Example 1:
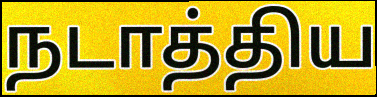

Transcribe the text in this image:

நடாத்திய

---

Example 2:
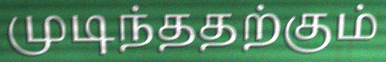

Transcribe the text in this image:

முடிந்ததற்கும்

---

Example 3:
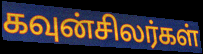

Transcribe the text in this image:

கவுன்சிலர்கள்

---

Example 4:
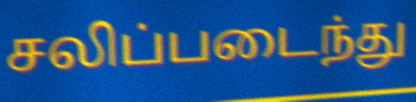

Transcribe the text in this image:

சலிப்படைந்து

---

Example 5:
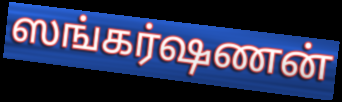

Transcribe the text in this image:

ஸங்கர்ஷணன்